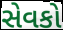
સેવકો